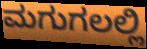
ಮಗುಗಲಲ್ಲಿ